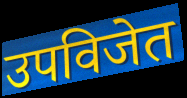
उपविजेत